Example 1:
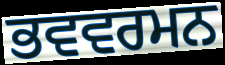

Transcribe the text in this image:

ਭਵਵਰਮਨ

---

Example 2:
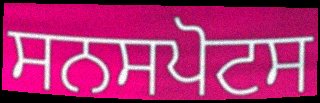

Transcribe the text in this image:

ਸਨਸਪੋਟਸ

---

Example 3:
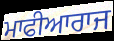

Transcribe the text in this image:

ਮਾਫੀਆਰਾਜ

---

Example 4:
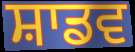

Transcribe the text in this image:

ਸ਼ਾਡਵ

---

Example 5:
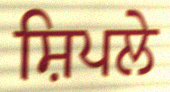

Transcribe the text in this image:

ਸ਼ਿਪਲੇ